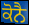
ਕੋਨੈ